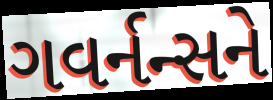
ગવર્નન્સને